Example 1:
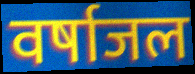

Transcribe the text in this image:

वर्षाजल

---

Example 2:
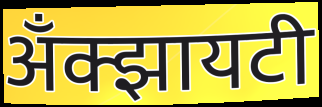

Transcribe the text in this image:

अँक्झायटी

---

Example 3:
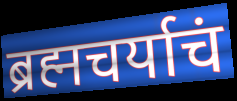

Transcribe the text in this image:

ब्रह्मचर्याचं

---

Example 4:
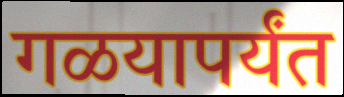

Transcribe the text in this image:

गळयापर्यंत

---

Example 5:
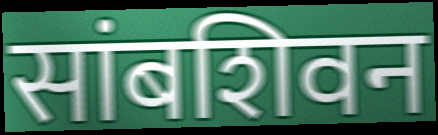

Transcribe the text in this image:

सांबशिवन